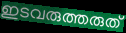
ഇടവരുത്തരുത്